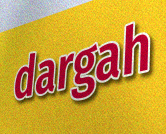
dargah